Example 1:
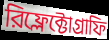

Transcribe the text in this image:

রিফ্লেক্টোগ্রাফি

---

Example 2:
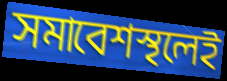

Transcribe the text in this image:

সমাবেশস্থলেই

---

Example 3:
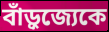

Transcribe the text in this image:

বাঁড়ুজ্যেকে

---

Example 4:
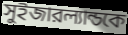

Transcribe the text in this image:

সুইজারল্যান্ডকে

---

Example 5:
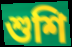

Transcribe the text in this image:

শুশি